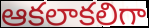
ఆకలాకలిగా